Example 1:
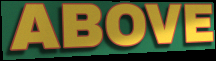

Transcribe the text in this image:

ABOVE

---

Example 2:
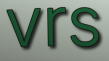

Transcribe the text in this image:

vrs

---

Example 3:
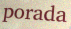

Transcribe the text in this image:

porada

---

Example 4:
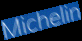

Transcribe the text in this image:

Michelin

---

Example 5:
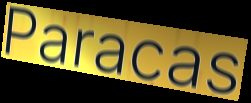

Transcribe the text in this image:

Paracas